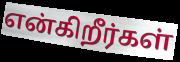
என்கிறீர்கள்